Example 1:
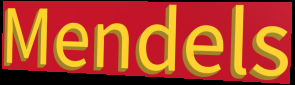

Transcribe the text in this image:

Mendels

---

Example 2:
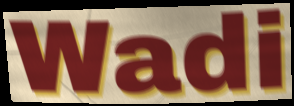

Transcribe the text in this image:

Wadi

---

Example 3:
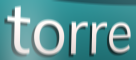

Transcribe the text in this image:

torre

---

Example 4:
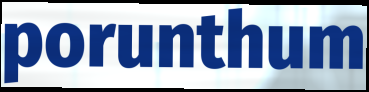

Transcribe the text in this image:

porunthum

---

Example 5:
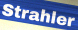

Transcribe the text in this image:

Strahler